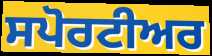
ਸਪੋਰਟੀਅਰ